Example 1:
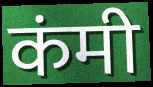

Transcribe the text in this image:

कंमी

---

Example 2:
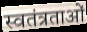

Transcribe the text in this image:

स्वतंत्रताओं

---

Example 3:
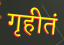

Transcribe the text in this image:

गृहीतं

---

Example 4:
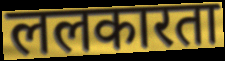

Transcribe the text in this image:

ललकारता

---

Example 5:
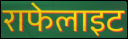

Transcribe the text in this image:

राफेलाइट